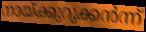
നായ്ക്കുറുക്കൻന്ന്